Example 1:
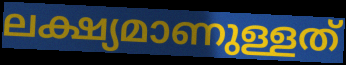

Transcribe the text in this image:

ലക്ഷ്യമാണുള്ളത്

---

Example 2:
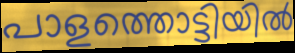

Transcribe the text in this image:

പാളത്തൊട്ടിയിൽ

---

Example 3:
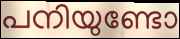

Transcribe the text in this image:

പനിയുണ്ടോ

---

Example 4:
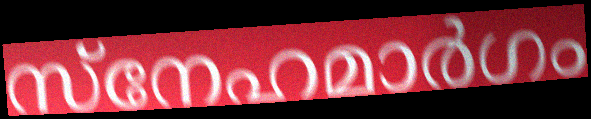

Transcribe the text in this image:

സ്നേഹമാർഗം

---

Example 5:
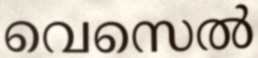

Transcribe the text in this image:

വെസെൽ